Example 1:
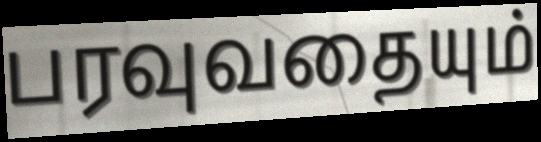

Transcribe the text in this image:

பரவுவதையும்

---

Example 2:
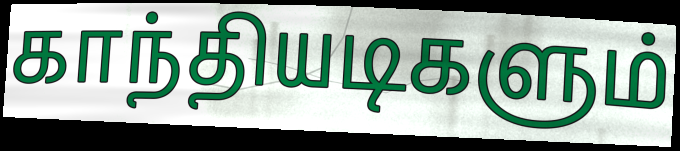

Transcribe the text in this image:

காந்தியடிகளும்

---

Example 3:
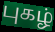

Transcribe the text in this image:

புகழ்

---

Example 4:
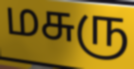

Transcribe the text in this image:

மசுரு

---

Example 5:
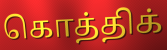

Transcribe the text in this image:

கொத்திக்